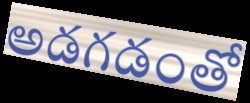
అడగడంతో